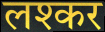
लश्‍कर